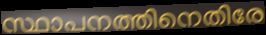
സ്ഥാപനത്തിനെതിരേ